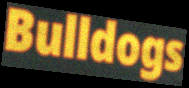
Bulldogs